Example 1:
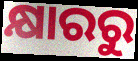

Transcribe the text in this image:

କ୍ଷାରରୁ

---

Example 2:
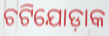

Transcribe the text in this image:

ଚଟିଯୋଡ଼ାକ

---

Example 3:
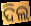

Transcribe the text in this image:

ଦିଲ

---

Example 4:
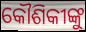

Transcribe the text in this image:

କୌଶିକୀଙ୍କୁ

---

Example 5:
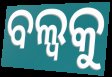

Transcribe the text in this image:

ବଲ୍ବକୁ